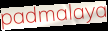
padmalaya